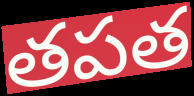
తపత